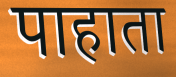
पाहाता